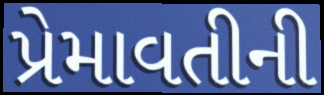
પ્રેમાવતીની